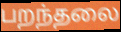
பறந்தலை